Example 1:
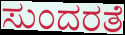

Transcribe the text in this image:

ಸುಂದರತೆ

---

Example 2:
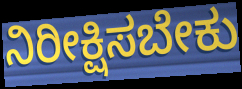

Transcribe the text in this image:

ನಿರೀಕ್ಷಿಸಬೇಕು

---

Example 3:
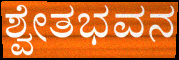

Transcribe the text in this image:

ಶ್ವೇತಭವನ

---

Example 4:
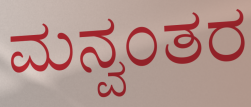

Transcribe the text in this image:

ಮನ್ವಂತರ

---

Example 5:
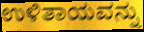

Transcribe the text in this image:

ಉಳಿತಾಯವನ್ನು